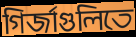
গির্জাগুলিতে